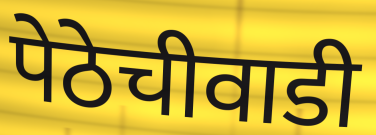
पेठेचीवाडी